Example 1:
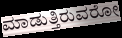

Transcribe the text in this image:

ಮಾಡುತ್ತಿರುವರೋ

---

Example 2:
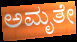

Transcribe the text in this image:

ಅಮೃತೇ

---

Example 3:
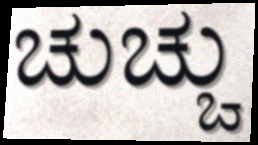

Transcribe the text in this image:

ಚುಚ್ಚು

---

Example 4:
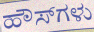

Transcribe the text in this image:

ಹೌಸ್‌ಗಳು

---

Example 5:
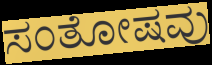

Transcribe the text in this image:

ಸಂತೋಷವು